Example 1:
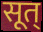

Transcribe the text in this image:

सूत्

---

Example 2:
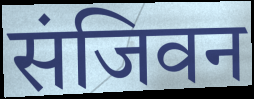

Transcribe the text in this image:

संजिवन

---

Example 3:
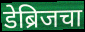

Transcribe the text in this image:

डेब्रिजचा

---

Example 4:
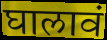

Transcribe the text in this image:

घालावं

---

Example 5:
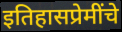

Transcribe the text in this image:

इतिहासप्रेमींचे